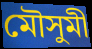
মৌসুমী